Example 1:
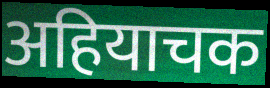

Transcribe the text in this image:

अहियाचक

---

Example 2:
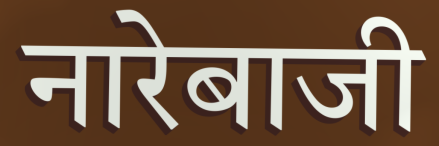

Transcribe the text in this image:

नारेबाजी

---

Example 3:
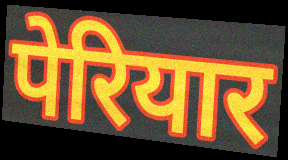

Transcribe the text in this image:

पेरियार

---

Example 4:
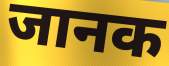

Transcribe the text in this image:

जानक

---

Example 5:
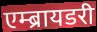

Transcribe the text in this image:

एम्ब्रायडरी